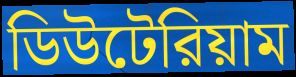
ডিউটেরিয়াম